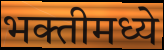
भक्तीमध्ये